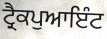
ਟ੍ਰੈਕਪੁਆਇੰਟ